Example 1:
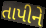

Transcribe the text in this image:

તાપીને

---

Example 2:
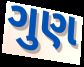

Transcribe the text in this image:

ગુણ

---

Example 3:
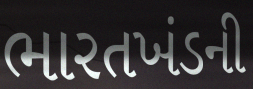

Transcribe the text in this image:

ભારતખંડની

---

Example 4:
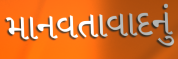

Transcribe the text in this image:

માનવતાવાદનું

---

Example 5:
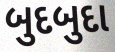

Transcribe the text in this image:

બુદબુદા